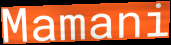
Mamani